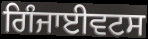
ਗਿੰਜਾਈਵਟਸ